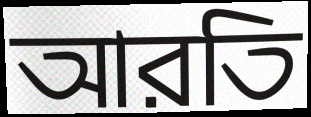
আরতি